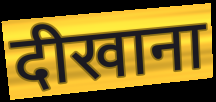
दीखाना